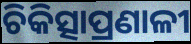
ଚିକିତ୍ସାପ୍ରଣାଳୀ